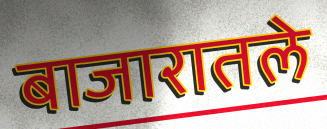
बाजारातले